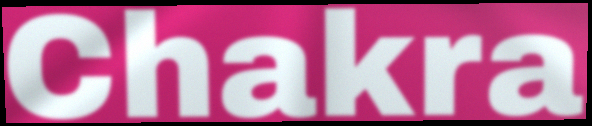
Chakra